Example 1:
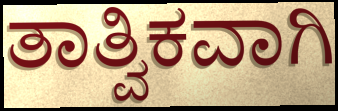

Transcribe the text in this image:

ತಾತ್ವಿಕವಾಗಿ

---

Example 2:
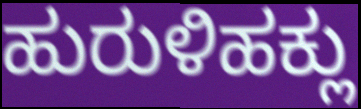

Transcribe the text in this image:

ಹುರುಳಿಹಕ್ಲು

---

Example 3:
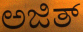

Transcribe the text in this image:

ಅಜಿತ್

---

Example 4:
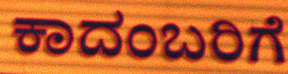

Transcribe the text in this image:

ಕಾದಂಬರಿಗೆ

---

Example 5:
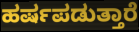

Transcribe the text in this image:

ಹರ್ಷಪಡುತ್ತಾರೆ